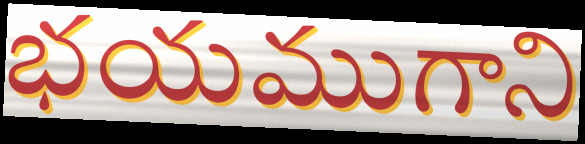
భయముగాని